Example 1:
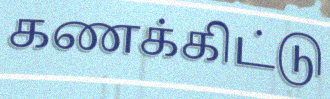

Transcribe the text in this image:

கணக்கிட்டு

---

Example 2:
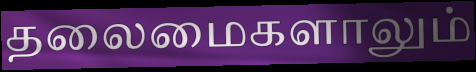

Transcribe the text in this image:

தலைமைகளாலும்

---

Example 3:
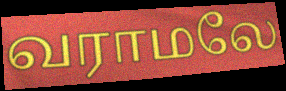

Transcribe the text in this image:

வராமலே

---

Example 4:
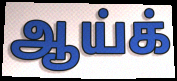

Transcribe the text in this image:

ஆய்க்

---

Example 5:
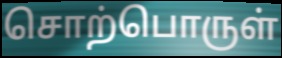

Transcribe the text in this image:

சொற்பொருள்